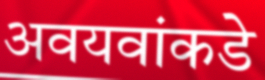
अवयवांकडे